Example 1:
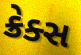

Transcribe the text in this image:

ક્રેક્સ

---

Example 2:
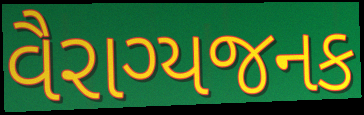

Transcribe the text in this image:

વૈરાગ્યજનક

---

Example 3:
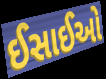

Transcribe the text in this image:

ઈસાઈઓ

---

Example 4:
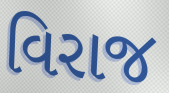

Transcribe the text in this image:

વિરાજ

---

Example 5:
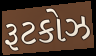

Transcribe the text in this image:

રૂટકોઝ